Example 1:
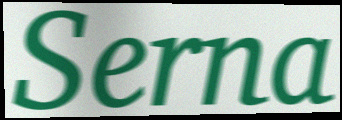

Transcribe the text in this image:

Serna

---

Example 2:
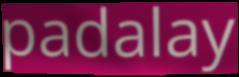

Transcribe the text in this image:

padalay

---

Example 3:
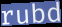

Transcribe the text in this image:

rubd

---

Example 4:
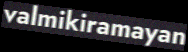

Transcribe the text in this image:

valmikiramayan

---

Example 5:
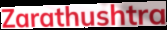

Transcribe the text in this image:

Zarathushtra